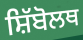
ਸ਼ਿੱਬੋਲਥ